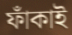
ফাঁকাই